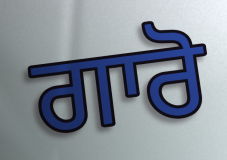
ਗਾਰੋ